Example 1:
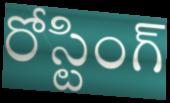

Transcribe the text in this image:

రోస్టింగ్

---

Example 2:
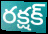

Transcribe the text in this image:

రక్షక్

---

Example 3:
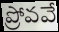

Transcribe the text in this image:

ప్రోవవే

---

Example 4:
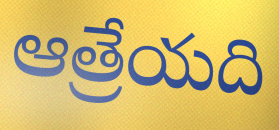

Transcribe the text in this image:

ఆత్రేయది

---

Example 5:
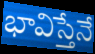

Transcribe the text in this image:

భావిస్తేనే